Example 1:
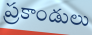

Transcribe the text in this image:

ప్రకాండులు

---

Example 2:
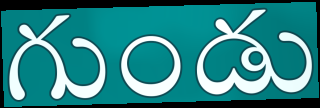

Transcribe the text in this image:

గుండు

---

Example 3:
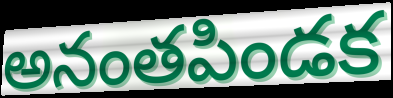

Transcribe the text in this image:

అనంతపిండక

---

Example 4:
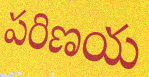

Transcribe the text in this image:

పరిణయ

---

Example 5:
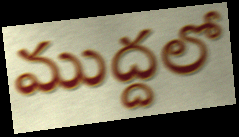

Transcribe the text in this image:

ముద్దలో